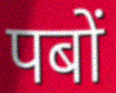
पबों